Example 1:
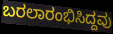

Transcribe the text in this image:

ಬರಲಾರಂಭಿಸಿದ್ದವು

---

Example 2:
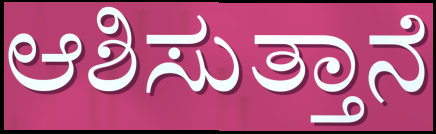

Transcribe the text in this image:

ಆಶಿಸುತ್ತಾನೆ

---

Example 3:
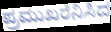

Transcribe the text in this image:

ಪ್ರಮುಖರೆನಿಸಿದ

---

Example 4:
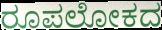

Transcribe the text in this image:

ರೂಪಲೋಕದ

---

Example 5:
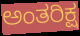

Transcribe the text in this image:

ಅಂತರಿಕ್ಷ